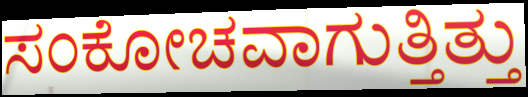
ಸಂಕೋಚವಾಗುತ್ತಿತ್ತು